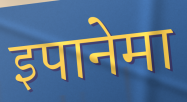
इपानेमा